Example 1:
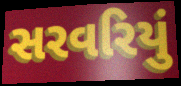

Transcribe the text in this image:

સરવરિયું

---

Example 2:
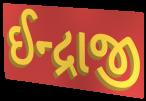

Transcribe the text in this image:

ઈન્દ્રાજી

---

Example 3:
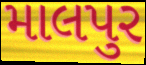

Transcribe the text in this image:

માલપુર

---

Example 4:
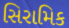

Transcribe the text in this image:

સિરામિક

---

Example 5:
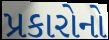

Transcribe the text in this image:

પ્રકારોનો